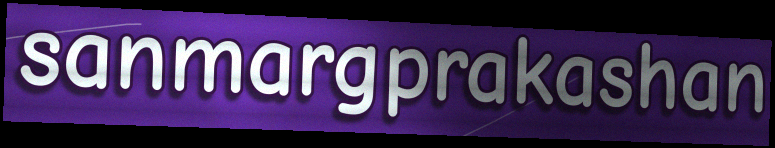
sanmargprakashan